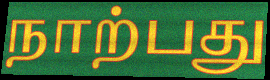
நாற்பது